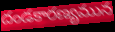
దండకారణ్యమున